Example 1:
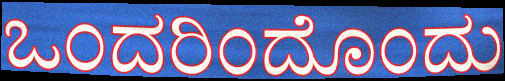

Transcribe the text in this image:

ಒಂದರಿಂದೊಂದು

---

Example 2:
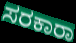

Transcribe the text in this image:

ಸರಕಾರಾ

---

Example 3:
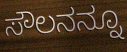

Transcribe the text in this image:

ಸೌಲನನ್ನೂ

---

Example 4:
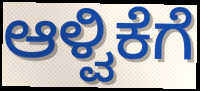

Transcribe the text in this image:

ಆಳ್ವಿಕೆಗೆ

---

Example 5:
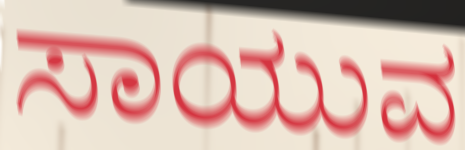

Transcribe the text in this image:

ಸಾಯುವ